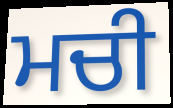
ਮਚੀ